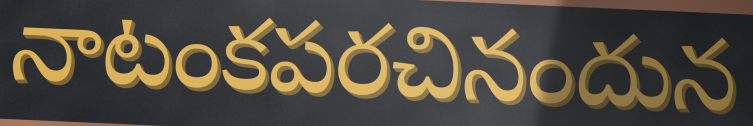
నాటంకపరచినందున